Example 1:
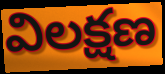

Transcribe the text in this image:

విలక్షణ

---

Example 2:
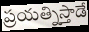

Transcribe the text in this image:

ప్రయత్నిస్తాడే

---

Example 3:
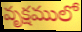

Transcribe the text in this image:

వృక్షములో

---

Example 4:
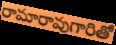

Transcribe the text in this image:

రామారావుగారితో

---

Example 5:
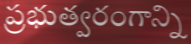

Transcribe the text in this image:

ప్రభుత్వరంగాన్ని